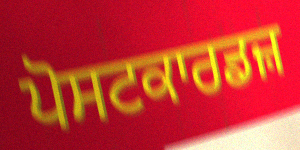
ਪੋਸਟਕਾਰਡਜ਼